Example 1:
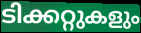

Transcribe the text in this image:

ടിക്കറ്റുകളും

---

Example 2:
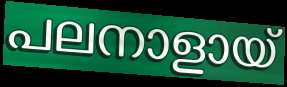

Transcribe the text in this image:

പലനാളായ്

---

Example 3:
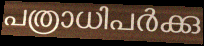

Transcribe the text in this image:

പത്രാധിപർക്കു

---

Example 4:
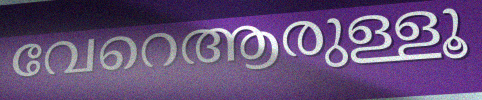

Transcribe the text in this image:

വേറെആരുള്ളൂ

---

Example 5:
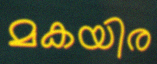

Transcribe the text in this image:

മകയിര